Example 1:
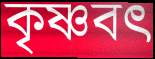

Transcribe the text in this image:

কৃষ্ণবৎ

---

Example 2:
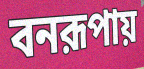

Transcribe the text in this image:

বনরূপায়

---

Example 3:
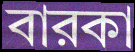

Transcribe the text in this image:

বারকা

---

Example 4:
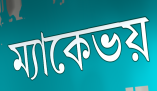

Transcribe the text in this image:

ম্যাকেভয়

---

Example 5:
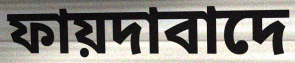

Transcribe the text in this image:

ফায়দাবাদে